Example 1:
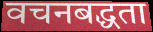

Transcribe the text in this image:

वचनबद्धता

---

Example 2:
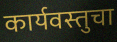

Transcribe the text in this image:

कार्यवस्तुचा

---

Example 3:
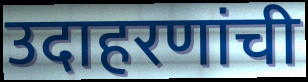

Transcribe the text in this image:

उदाहरणांची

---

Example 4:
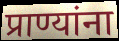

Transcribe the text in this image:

प्राण्यांना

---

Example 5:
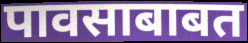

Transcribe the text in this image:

पावसाबाबत